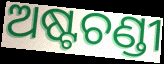
ଅଷ୍ଟଚଣ୍ଡୀ